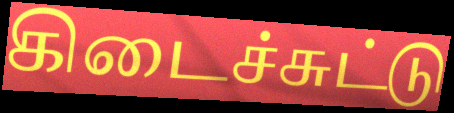
கிடைச்சுட்டு